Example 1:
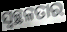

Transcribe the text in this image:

ସ୍ଵଚ୍ଛଳତାର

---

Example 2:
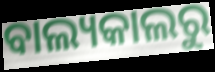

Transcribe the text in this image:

ବାଲ୍ୟକାଲରୁ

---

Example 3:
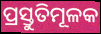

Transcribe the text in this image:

ପ୍ରସ୍ତୁତିମୂଳକ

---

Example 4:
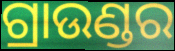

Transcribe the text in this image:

ଗ୍ରାଉଣ୍ଡର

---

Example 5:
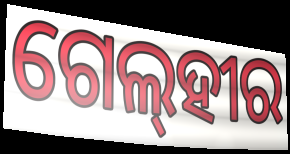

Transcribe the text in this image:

ଗେଲ୍‌ହୀର